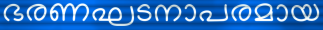
ഭരണഘടനാപരമായ